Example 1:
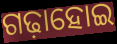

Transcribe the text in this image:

ଗଢ଼ାହୋଇ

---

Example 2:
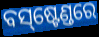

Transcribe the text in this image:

ବସ୍‌ଷ୍ଟେଣ୍ଡରେ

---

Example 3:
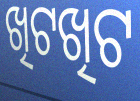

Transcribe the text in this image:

ଖିଟଖିଟ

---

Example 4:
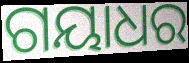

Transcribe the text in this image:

ଗୟାଧର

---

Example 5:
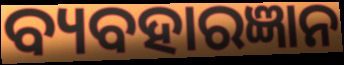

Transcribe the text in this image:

ବ୍ୟବହାରଜ୍ଞାନ